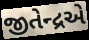
જીતેન્દ્રએ